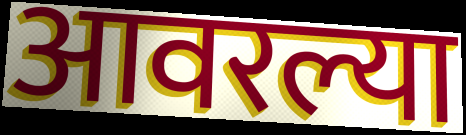
आवरल्या